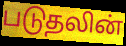
படுதலின்